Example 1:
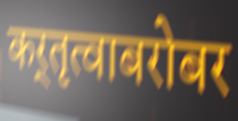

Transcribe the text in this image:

कर्तृत्वाबरोबर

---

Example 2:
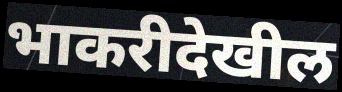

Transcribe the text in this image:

भाकरीदेखील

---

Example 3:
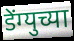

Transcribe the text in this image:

डेंग्युच्या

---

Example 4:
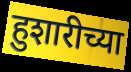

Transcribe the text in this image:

हुशारीच्या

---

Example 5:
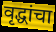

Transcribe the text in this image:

वृद्धांचा